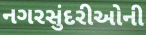
નગરસુંદરીઓની